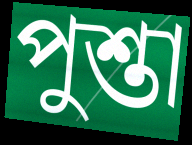
পুশ্তা